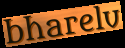
bharelu